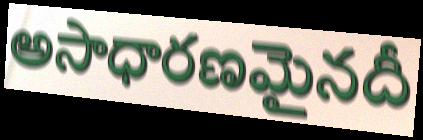
అసాధారణమైనదీ